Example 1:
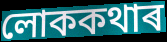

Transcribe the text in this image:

লোককথাৰ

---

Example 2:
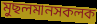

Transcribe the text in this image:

মুছলমানসকলক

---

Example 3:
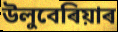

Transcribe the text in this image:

উলুবেৰিয়াৰ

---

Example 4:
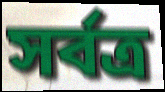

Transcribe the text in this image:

সৰ্বত্ৰ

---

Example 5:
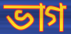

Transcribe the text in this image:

ভাগ